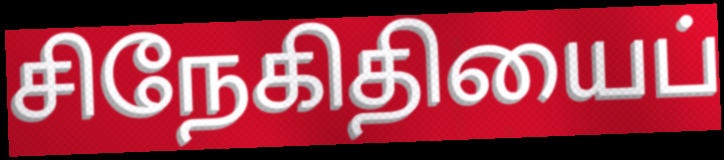
சிநேகிதியைப்